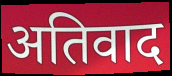
अतिवाद